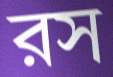
রস